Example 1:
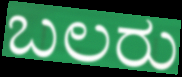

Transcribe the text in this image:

ಬಲರು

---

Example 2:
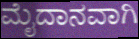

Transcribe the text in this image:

ಮೈದಾನವಾಗಿ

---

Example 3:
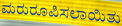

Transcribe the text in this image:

ಮರುರೂಪಿಸಲಾಯಿತು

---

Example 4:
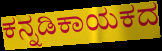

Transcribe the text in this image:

ಕನ್ನಡಿಕಾಯಕದ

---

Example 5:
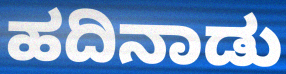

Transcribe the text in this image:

ಹದಿನಾಡು